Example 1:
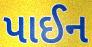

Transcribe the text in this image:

પાઈન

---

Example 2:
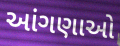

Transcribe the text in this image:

આંગણાઓ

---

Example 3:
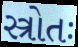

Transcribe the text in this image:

સ્ત્રોતઃ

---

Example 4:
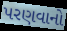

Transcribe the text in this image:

પરણવાનો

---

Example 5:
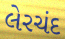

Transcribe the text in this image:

લેરચંદ